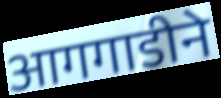
आगगाडीने